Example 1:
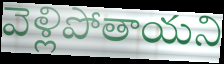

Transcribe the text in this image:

వెళ్లిపోతాయని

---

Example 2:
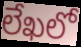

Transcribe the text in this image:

లేఖలో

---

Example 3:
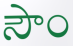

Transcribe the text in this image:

సౌం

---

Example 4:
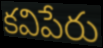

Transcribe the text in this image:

కవిపేరు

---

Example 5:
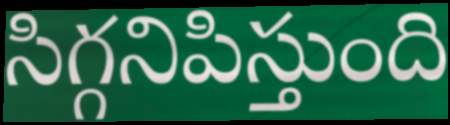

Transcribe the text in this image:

సిగ్గనిపిస్తుంది